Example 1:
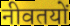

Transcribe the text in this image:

नीवतयों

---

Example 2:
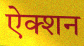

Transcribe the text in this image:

ऐक्‍शन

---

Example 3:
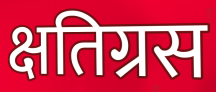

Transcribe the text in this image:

क्षतिग्रस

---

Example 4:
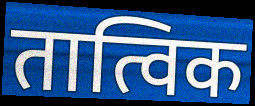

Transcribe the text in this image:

तात्विक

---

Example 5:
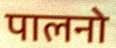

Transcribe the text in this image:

पालनो